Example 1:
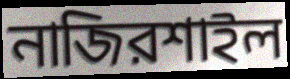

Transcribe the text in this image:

নাজিরশাইল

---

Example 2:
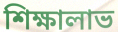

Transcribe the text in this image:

শিক্ষালাভ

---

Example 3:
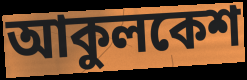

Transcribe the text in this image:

আকুলকেশ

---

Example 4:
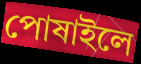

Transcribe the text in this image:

পোষাইলে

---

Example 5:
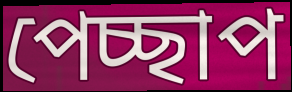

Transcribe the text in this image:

পেচ্ছাপ